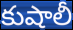
కుషాలీ